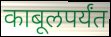
काबूलपर्यंत